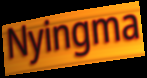
Nyingma